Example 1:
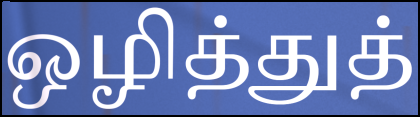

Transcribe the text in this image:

ஒழித்துத்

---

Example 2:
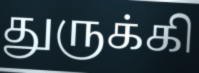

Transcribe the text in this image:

துருக்கி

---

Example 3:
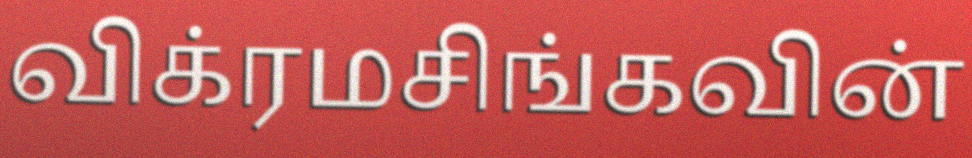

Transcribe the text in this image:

விக்ரமசிங்கவின்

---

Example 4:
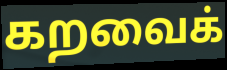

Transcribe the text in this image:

கறவைக்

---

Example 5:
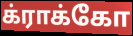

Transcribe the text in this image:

க்ராக்கோ